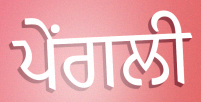
ਪੇਂਗਲੀ